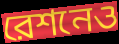
রেশনেও